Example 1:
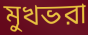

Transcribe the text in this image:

মুখভরা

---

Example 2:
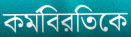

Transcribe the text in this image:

কর্মবিরতিকে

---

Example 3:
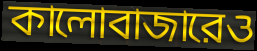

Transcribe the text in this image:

কালোবাজারেও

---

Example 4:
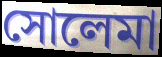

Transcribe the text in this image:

সোলেমা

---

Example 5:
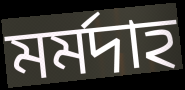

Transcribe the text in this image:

মর্মদাহ